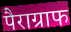
पैराग्राफ